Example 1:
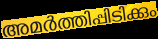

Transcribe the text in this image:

അമർത്തിപ്പിടിക്കും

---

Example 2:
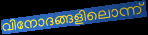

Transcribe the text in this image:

വിനോദങ്ങളിലൊന്ന്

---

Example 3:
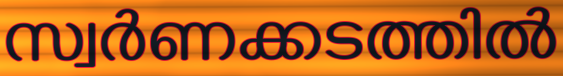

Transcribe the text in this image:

സ്വർണക്കടത്തിൽ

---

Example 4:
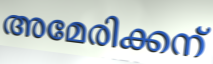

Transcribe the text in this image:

അമേരിക്കന്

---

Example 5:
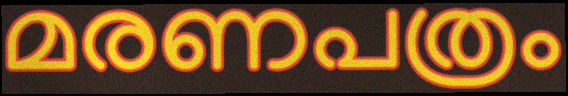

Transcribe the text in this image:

മരണപത്രം